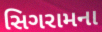
સિગરામના